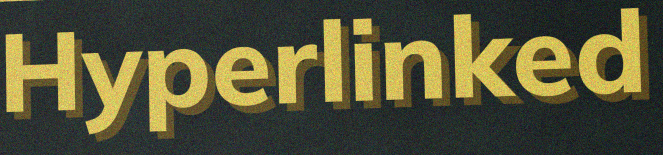
Hyperlinked